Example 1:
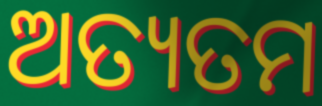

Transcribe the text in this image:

ଅତ୍ୟତମ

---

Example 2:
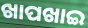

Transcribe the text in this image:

ଖାପଖାଇ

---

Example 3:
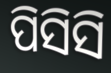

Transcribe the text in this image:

ପିସିସି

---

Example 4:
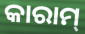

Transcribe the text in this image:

କାରାମ୍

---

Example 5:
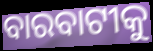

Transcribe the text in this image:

ବାରବାଟୀକୁ